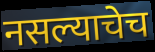
नसल्याचेच